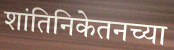
शांतिनिकेतनच्या